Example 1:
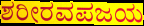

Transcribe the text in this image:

ಶರೀರವಪಜಯ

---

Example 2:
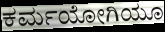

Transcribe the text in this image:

ಕರ್ಮಯೋಗಿಯೂ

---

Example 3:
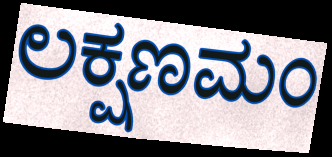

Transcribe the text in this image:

ಲಕ್ಷಣಮಂ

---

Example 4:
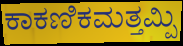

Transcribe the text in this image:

ಕಾಕಣಿಕಮತ್ತಮ್ಪಿ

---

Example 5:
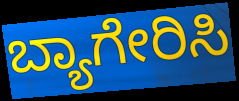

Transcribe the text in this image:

ಬ್ಯಾಗೇರಿಸಿ